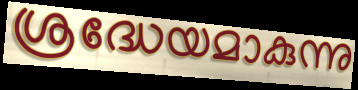
ശ്രദ്ധേയമാകുന്നു